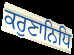
ਕਰੁਣਾਨਿਧਿ